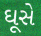
ઘૂસે